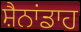
ਸ਼ੈਨਾਂਡਾਹ